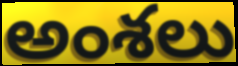
అంశలు